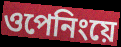
ওপেনিংয়ে